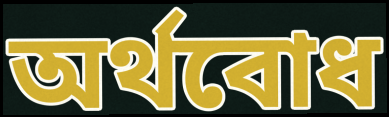
অৰ্থবোধ